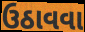
ઉઠાવવા